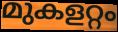
മുകളറ്റം